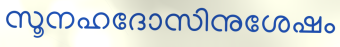
സൂനഹദോസിനുശേഷം